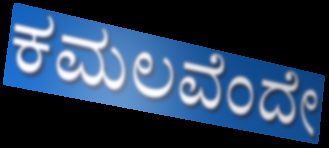
ಕಮಲವೆಂದೇ